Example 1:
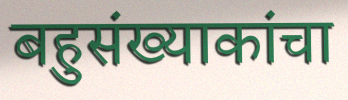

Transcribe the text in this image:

बहुसंख्याकांचा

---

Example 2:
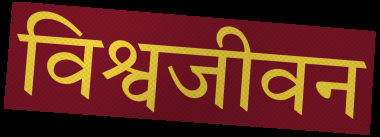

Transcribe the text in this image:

विश्वजीवन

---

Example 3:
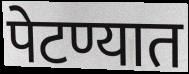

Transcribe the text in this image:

पेटण्यात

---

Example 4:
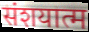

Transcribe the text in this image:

संशयात्म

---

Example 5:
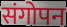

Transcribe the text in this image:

संगोपन